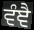
ਵੰਞੈ